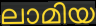
ലാമിയ